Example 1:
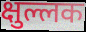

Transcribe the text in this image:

क्षुल्लक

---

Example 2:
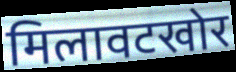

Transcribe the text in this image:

मिलावटखोर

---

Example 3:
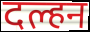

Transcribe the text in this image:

दल्हन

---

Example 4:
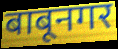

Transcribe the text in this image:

बाबूनगर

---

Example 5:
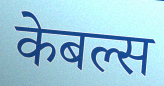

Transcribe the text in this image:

केबल्स